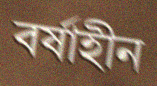
বর্ষাহীন